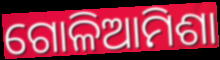
ଗୋଳିଆମିଶା